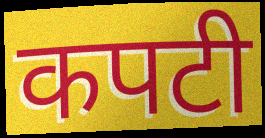
कपटी